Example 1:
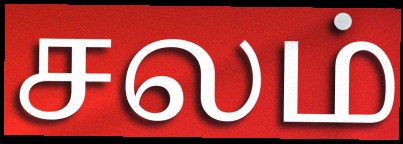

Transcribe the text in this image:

சலம்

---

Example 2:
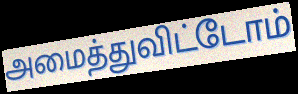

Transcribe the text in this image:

அமைத்துவிட்டோம்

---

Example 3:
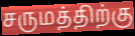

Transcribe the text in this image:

சருமத்திற்கு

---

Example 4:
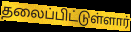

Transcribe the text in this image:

தலைப்பிட்டுள்ளார்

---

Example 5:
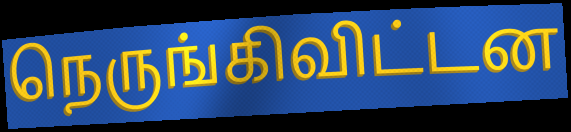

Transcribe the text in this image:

நெருங்கிவிட்டன